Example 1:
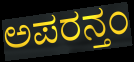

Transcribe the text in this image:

ಅಪರನ್ತಂ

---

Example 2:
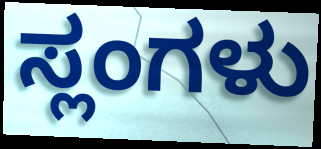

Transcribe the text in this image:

ಸ್ಲಂಗಳು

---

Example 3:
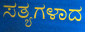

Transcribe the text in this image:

ಸತ್ಯಗಳಾದ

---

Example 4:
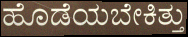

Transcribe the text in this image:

ಹೊಡೆಯಬೇಕಿತ್ತು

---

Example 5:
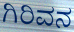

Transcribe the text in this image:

ಗಿರಿವನ